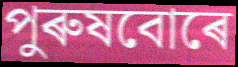
পুৰুষবোৰে